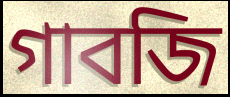
গাবজি